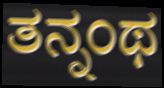
ತನ್ನಂಥ